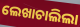
ଲେଖାଚାଲିଲା